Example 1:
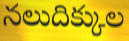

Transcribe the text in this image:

నలుదిక్కుల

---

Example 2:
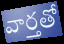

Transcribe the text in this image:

వార్తతో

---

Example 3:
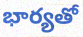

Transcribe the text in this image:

భార్యతో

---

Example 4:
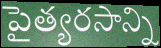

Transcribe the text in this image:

పైత్యరసాన్ని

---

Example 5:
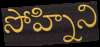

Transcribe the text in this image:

సోహ్నిని